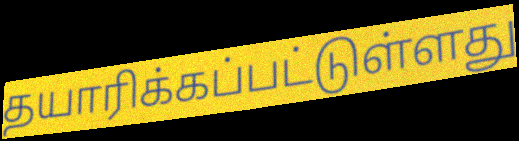
தயாரிக்கப்பட்டுள்ளது